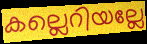
കല്ലെറിയല്ലേ